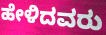
ಹೇಳಿದವರು